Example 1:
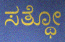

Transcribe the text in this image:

ಸತ್ಥೋ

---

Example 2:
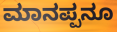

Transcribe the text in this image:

ಮಾನಪ್ಪನೂ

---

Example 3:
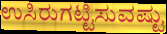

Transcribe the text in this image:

ಉಸಿರುಗಟ್ಟಿಸುವಷ್ಟು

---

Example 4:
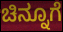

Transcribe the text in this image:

ಚಿನ್ನೂಗೆ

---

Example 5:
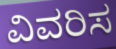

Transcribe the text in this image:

ವಿವರಿಸ